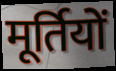
मूर्तियों